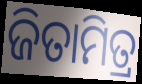
ଜିତାମିତ୍ର